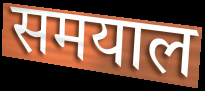
समयाल